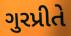
ગુરપ્રીતે